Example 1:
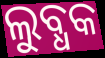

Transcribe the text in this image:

ଲୁବ୍ଧକ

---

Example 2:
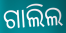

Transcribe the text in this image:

ଗାଲିଲ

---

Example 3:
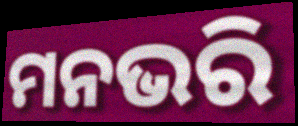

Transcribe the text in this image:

ମନଭରି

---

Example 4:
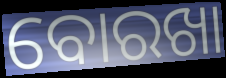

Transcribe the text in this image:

ବୋରଖା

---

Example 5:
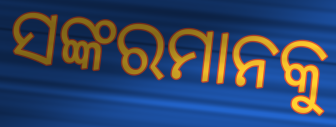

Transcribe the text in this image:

ସଙ୍କରମାନକୁ